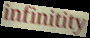
infinitity